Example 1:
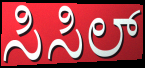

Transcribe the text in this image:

ಸಿಸಿಲ್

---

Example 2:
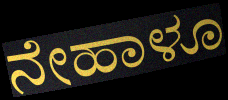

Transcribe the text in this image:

ನೇಹಾಳೂ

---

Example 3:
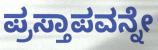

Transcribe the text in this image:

ಪ್ರಸ್ತಾಪವನ್ನೇ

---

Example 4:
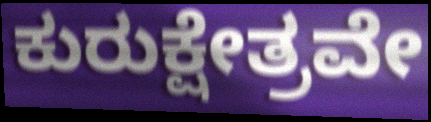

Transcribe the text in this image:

ಕುರುಕ್ಷೇತ್ರವೇ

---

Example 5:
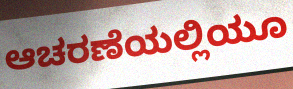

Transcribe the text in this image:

ಆಚರಣೆಯಲ್ಲಿಯೂ